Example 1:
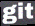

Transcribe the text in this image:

git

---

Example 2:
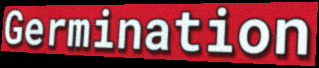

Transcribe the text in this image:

Germination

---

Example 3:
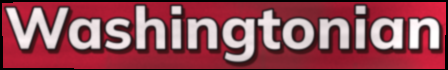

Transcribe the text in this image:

Washingtonian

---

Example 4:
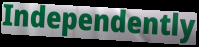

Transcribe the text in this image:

Independently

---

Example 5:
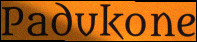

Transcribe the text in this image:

Padukone